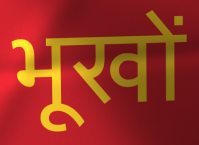
भूखों